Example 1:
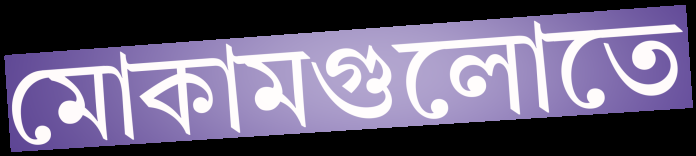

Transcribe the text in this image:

মোকামগুলোতে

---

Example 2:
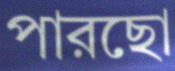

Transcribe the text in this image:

পারছো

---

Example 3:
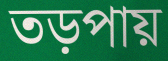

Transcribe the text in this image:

তড়পায়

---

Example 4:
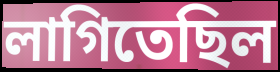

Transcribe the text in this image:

লাগিতেছিল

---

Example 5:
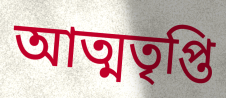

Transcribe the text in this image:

আত্মতৃপ্তি